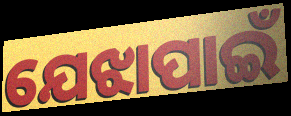
ଯେଝାପାଇଁ